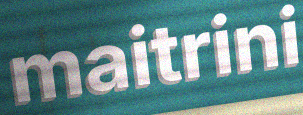
maitrini